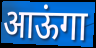
आऊंगा